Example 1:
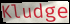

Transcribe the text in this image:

Kludge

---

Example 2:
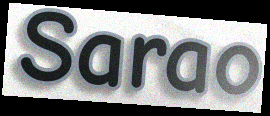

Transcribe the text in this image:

Sarao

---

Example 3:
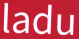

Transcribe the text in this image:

ladu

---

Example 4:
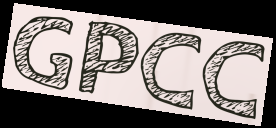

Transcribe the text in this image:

GPCC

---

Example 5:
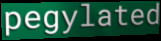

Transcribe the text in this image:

pegylated